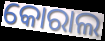
କୋରାଲ